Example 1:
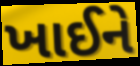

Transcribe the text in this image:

ખાઈને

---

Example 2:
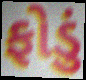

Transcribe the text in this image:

ફોડું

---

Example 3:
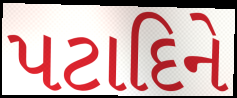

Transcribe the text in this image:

પટાદિને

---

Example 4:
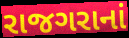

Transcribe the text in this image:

રાજગરાનાં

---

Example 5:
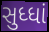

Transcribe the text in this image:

સુધ્ધાં